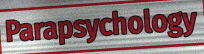
Parapsychology